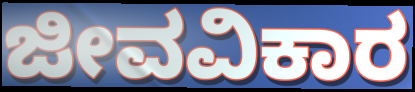
ಜೀವವಿಕಾರ